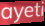
ayeti